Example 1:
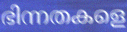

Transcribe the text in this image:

ഭിന്നതകളെ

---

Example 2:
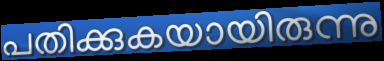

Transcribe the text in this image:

പതിക്കുകയായിരുന്നു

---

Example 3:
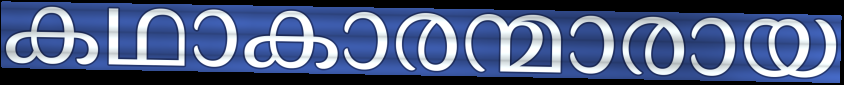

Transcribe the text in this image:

കഥാകാരന്മാരായ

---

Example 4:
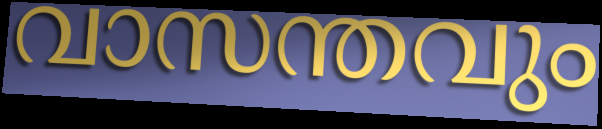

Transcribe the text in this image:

വാസന്തവും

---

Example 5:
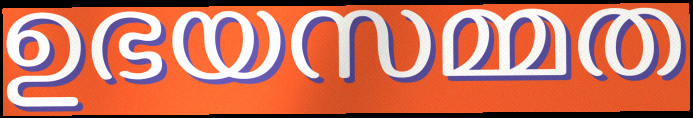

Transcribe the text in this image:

ഉഭയസമ്മത